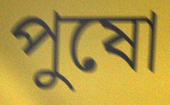
পুষো